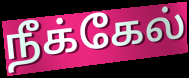
நீக்கேல்